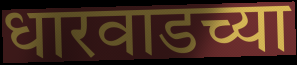
धारवाडच्या